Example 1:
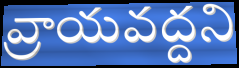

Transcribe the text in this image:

వ్రాయవద్దని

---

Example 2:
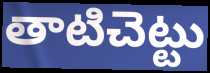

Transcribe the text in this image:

తాటిచెట్టు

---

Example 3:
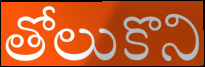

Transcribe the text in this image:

తోలుకొని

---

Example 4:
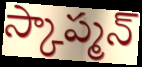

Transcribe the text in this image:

స్కాప్మన్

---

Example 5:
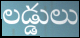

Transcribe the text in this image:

లడ్డులు